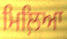
ਮਿਲ਼ਿਆ